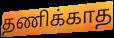
தணிக்காத